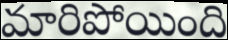
మారిపోయింది